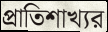
প্রাতিশাখ্যর